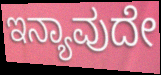
ಇನ್ಯಾವುದೇ